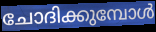
ചോദിക്കുമ്പോൾ